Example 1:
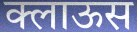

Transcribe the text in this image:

क्लाऊस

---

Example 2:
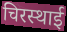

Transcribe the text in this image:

चिरस्थाई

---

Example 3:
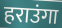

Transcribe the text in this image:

हराउंगा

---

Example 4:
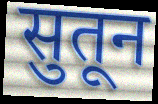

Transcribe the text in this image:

सुतून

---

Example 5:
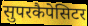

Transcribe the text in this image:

सुपरकैपेसिटर